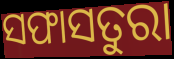
ସଫାସତୁରା